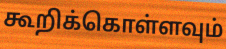
கூறிக்கொள்ளவும்